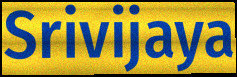
Srivijaya